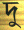
দু